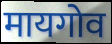
मायगोव